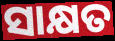
ସାକ୍ଷତ